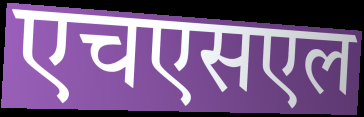
एचएसएल